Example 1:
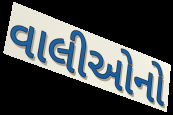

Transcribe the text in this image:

વાલીઓનો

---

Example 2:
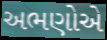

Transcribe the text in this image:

અભણોએ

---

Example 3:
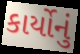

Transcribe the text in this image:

કાર્યોનું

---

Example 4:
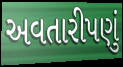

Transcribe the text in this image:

અવતારીપણું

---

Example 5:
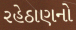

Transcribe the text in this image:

રહેઠાણનો